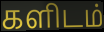
களிடம்